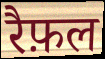
रैफ़ल